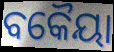
ବକୈୟା